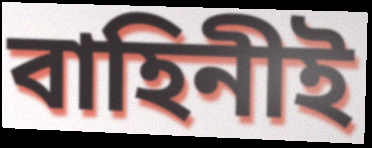
বাহিনীই